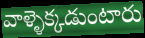
వాళ్ళెక్కడుంటారు